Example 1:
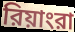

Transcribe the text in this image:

রিয়াংরা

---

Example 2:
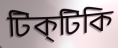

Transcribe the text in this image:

টিক্‌টিকি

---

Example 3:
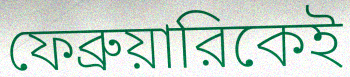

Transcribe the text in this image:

ফেব্রুয়ারিকেই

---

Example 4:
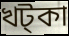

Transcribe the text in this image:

খট্‌কা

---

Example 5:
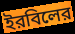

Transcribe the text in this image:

ইরবিলের